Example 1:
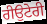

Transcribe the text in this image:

ਰੀਉਟੇਰੀ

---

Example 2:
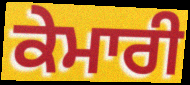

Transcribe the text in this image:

ਕੇਮਾਰੀ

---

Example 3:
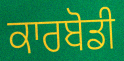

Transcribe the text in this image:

ਕਾਰਬੋਡੀ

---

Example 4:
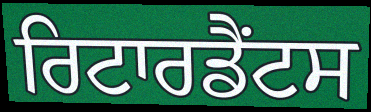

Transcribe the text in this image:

ਰਿਟਾਰਡੈਂਟਸ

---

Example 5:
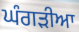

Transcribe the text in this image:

ਘੰਗੜੀਆ